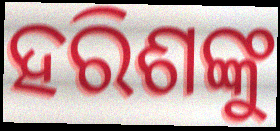
ହରିଶଙ୍କୁ